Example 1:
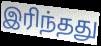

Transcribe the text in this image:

இரிந்தது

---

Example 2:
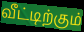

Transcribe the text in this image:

வீட்டிற்கும்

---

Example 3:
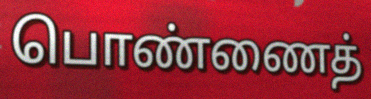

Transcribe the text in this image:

பொண்ணைத்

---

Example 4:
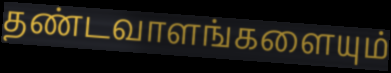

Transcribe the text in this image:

தண்டவாளங்களையும்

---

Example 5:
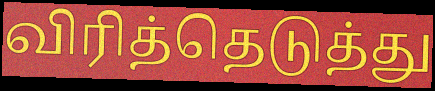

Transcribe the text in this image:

விரித்தெடுத்து